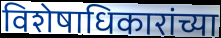
विशेषाधिकारांच्या